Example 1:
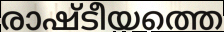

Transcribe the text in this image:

രാഷ്ടീയത്തെ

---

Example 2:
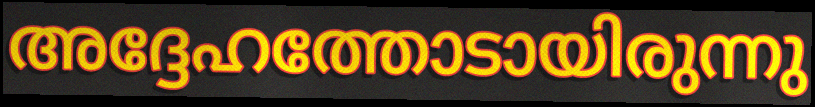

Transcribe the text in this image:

അദ്ദേഹത്തോടായിരുന്നു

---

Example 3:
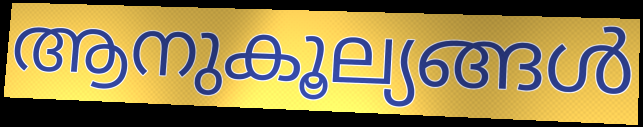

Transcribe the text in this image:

ആനുകൂല്യങ്ങൾ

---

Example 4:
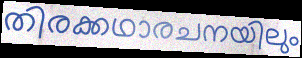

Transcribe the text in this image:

തിരക്കഥാരചനയിലും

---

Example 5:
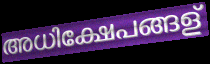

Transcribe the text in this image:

അധിക്ഷേപങ്ങള്